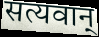
सत्यवान्